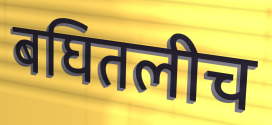
बघितलीच